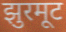
झुरमूट